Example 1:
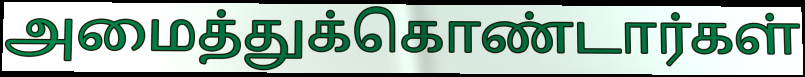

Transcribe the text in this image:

அமைத்துக்கொண்டார்கள்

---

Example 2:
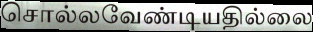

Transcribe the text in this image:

சொல்லவேண்டியதில்லை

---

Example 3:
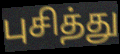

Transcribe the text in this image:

புசித்து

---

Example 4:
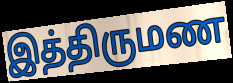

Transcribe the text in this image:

இத்திருமண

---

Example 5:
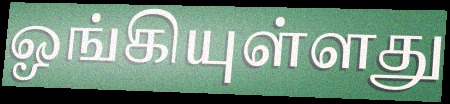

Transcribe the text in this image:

ஓங்கியுள்ளது